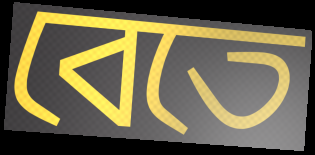
বেতে